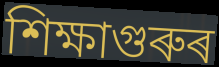
শিক্ষাগুৰুৰ